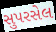
સુપરસેલ